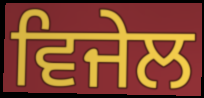
ਵਿਜੇਲ